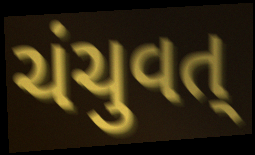
ચંચુવત્